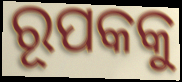
ରୂପକକୁ